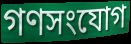
গণসংযোগ